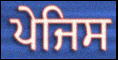
ਪੇਜਿਸ